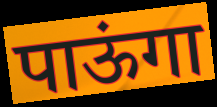
पाऊंगा